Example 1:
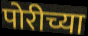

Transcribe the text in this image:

पोरीच्या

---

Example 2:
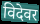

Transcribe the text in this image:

विदेवर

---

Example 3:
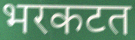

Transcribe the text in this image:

भरकटत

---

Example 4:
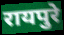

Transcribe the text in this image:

रायपुरे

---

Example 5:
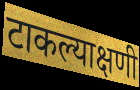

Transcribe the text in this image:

टाकल्याक्षणी